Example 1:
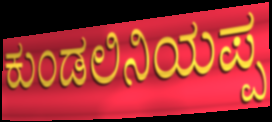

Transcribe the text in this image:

ಕುಂಡಲಿನಿಯಪ್ಪ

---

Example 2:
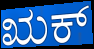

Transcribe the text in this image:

ಋಕ್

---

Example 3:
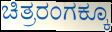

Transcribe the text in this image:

ಚಿತ್ರರಂಗಕ್ಕೂ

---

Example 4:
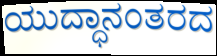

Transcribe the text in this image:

ಯುದ್ಧಾನಂತರದ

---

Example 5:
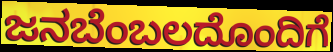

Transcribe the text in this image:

ಜನಬೆಂಬಲದೊಂದಿಗೆ